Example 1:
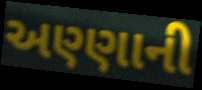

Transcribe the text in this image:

અણ્ણાની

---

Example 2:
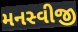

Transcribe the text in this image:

મનસ્વીજી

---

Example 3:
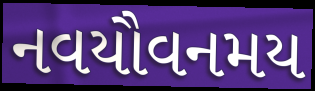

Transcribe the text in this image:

નવયૌવનમય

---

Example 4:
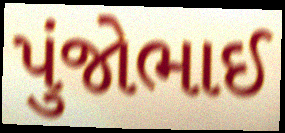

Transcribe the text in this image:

પુંજોભાઈ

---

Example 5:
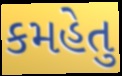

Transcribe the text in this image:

કમહેતુ